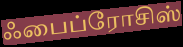
ஃபைப்ரோசிஸ்